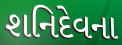
શનિદેવના